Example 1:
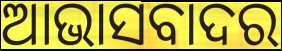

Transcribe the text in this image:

ଆଭାସବାଦର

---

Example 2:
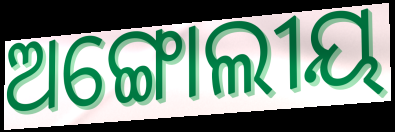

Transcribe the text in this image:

ଅଙ୍ଗୋଲୀୟ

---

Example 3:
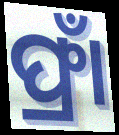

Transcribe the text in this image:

ଫ୍ରାଁ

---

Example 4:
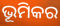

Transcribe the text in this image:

ଭୂମିକର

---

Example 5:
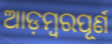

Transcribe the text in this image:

ଆଡ଼ମ୍ବରପୂର୍ଣ